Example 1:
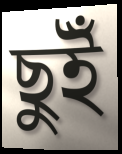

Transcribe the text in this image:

ছুইঁ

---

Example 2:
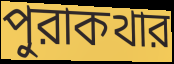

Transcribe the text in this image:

পুরাকথার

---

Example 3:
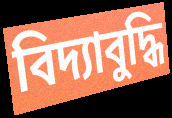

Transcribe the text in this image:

বিদ্যাবুদ্ধি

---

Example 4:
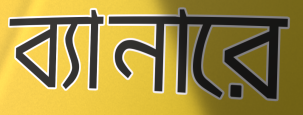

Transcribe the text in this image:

ব্যানারে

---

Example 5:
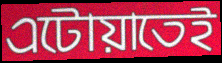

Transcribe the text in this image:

এটোয়াতেই